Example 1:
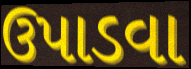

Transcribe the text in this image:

ઉપાડવા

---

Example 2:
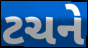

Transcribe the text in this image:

ટચને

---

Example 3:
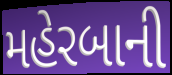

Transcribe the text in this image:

મહેરબાની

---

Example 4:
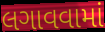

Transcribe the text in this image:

લગાવવામાં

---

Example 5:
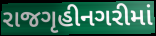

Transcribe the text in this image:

રાજગૃહીનગરીમાં